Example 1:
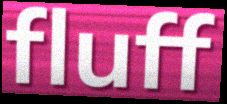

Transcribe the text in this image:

fluff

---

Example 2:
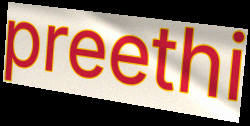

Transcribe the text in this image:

preethi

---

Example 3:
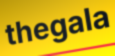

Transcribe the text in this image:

thegala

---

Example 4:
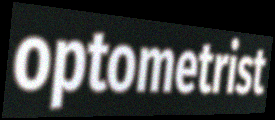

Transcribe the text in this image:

optometrist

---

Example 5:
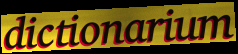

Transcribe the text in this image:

dictionarium